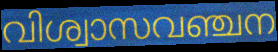
വിശ്വാസവഞ്ചന